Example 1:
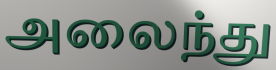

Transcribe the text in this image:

அலைந்து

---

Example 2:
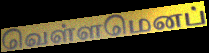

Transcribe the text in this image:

வெள்ளமெனப்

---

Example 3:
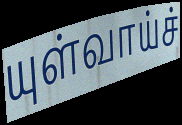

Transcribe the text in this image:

யுள்வாய்ச்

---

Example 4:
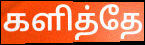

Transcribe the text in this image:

களித்தே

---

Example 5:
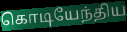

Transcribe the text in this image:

கொடியேந்திய